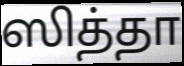
ஸித்தா